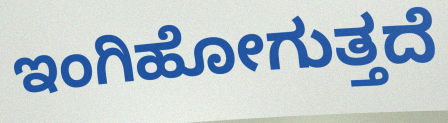
ಇಂಗಿಹೋಗುತ್ತದೆ